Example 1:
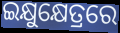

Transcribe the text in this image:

ଇକ୍ଷୁକ୍ଷେତ୍ରରେ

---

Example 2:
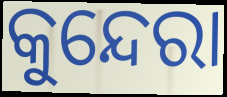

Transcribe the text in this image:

କୁନ୍ଦେରା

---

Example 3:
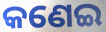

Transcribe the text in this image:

କଣେଇ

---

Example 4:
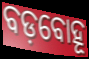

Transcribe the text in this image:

ବଡ଼ବୋହୂ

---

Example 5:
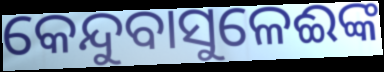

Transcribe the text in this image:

କେନ୍ଦୁବାସୁଳେଈଙ୍କ